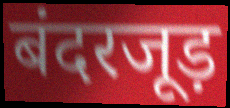
बंदरजूड़